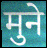
मुने